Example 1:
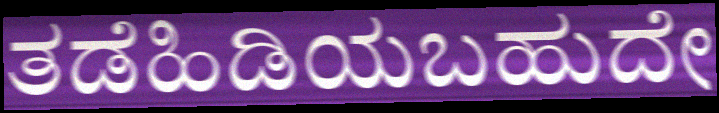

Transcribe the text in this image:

ತಡೆಹಿಡಿಯಬಹುದೇ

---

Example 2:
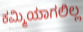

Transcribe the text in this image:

ಕಮ್ಮಿಯಾಗಲಿಲ್ಲ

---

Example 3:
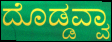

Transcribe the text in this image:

ದೊಡ್ಡವ್ವಾ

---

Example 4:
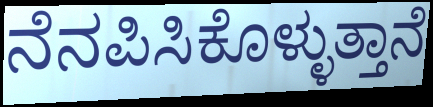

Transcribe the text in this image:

ನೆನಪಿಸಿಕೊಳ್ಳುತ್ತಾನೆ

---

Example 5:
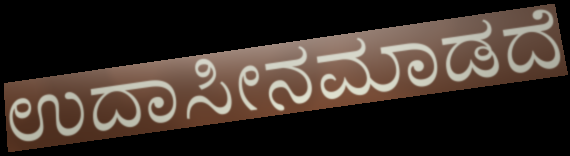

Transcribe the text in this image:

ಉದಾಸೀನಮಾಡದೆ